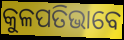
କୁଳପତିଭାବେ